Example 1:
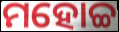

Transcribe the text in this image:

ମହୋଚ୍ଚ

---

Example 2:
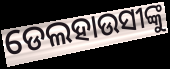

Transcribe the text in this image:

ଡେଲହାଉସୀଙ୍କୁ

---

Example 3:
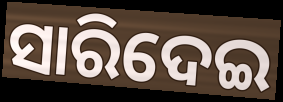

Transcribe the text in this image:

ସାରିଦେଇ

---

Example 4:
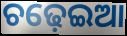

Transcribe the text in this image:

ଚଢ଼େଇଆ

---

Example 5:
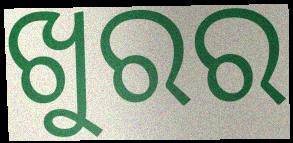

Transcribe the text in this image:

ଖୁରର